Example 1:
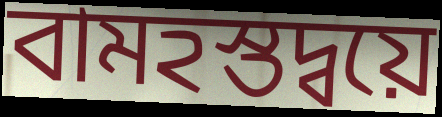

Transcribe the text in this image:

বামহস্তদ্বয়ে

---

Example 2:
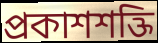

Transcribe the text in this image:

প্রকাশশক্তি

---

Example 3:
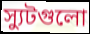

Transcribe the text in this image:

স্যুটগুলো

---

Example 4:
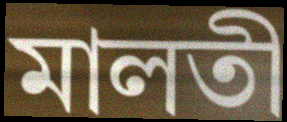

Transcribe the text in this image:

মালতী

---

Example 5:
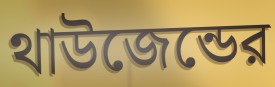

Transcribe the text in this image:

থাউজেন্ডের